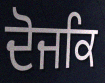
ਦੋਜਕਿ